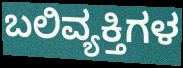
ಬಲಿವ್ಯಕ್ತಿಗಳ